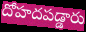
దోహదపడ్డారు